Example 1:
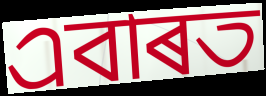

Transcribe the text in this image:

এবাৰত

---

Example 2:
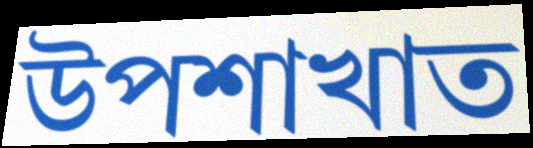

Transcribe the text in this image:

উপশাখাত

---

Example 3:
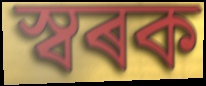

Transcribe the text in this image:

স্বৰক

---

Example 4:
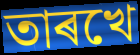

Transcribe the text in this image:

তাৰখে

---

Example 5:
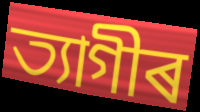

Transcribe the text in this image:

ত্যাগীৰ